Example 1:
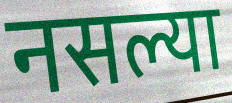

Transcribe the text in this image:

नसल्या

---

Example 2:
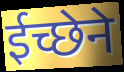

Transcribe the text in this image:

ईच्छेने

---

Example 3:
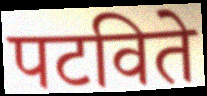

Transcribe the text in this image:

पटविते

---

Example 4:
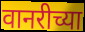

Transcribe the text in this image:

वानरीच्या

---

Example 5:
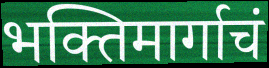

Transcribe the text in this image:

भक्तिमार्गाचं